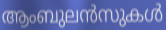
ആംബുലൻസുകൾ